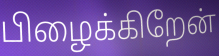
பிழைக்கிறேன்